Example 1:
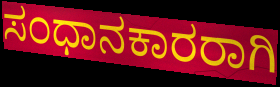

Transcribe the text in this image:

ಸಂಧಾನಕಾರರಾಗಿ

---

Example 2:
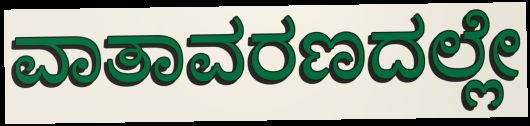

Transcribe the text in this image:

ವಾತಾವರಣದಲ್ಲೇ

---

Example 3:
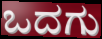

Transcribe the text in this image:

ಒದಗು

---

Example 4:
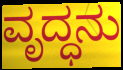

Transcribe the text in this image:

ವೃದ್ಧನು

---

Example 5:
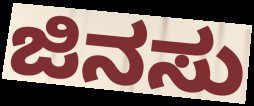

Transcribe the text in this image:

ಜಿನಸು